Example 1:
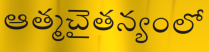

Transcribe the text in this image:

ఆత్మచైతన్యంలో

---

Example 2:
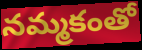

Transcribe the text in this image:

నమ్మకంతో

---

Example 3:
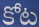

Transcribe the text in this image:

కోట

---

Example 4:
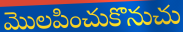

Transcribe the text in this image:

మొలపించుకొనుచు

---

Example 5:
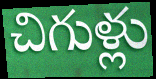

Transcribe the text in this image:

చిగుళ్లు